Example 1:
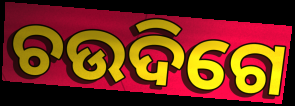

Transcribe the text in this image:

ଚଉଦିଗେ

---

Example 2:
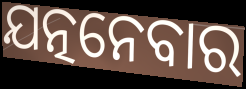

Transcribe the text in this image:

ଯତ୍ନନେବାର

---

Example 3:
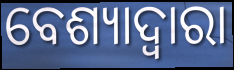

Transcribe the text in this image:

ବେଶ୍ୟାଦ୍ୱାରା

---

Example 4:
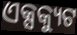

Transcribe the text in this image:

ଏକ୍ସକ୍ୟୁଟ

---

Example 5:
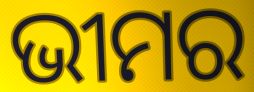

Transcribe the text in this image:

ଭୀମର